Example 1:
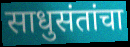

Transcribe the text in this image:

साधुसंतांचा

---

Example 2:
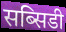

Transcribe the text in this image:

सब्सिडी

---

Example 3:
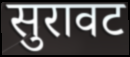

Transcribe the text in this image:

सुरावट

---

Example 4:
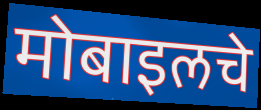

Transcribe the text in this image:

मोबाइलचे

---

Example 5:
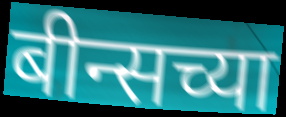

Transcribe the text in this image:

बीन्सच्या